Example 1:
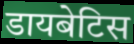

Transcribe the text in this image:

डायबेटिस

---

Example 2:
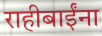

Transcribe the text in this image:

राहीबाईंना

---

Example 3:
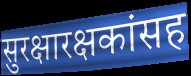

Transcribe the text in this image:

सुरक्षारक्षकांसह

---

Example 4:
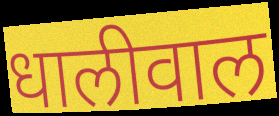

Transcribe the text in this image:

धालीवाल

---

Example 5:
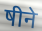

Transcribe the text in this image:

षीने